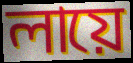
লায়ে